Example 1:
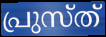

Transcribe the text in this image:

പ്രുസ്ത്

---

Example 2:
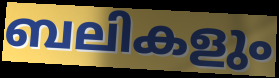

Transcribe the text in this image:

ബലികളും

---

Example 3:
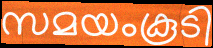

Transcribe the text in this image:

സമയംകൂടി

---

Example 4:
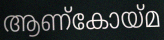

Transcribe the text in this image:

ആണ്കോയ്മ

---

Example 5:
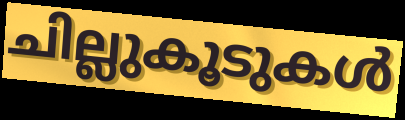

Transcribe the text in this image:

ചില്ലുകൂടുകൾ